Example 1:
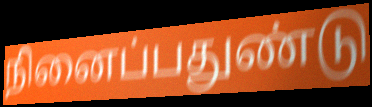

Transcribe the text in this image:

நினைப்பதுண்டு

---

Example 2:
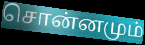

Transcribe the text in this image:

சொன்னமும்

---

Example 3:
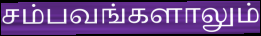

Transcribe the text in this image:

சம்பவங்களாலும்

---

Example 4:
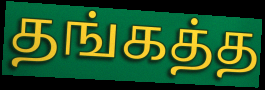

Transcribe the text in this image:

தங்கத்த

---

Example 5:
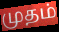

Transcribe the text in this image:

முதம்